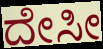
ದೇಸೀ